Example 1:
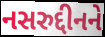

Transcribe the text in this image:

નસરુદ્દીનને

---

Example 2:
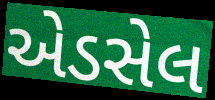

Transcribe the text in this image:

એડસેલ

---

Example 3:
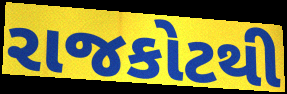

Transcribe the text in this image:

રાજકોટથી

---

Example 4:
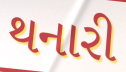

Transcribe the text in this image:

થનારી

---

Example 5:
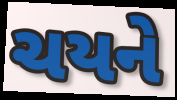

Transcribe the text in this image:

ચયને